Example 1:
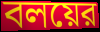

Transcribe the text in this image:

বলয়ের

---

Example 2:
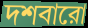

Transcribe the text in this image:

দশবারো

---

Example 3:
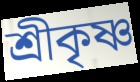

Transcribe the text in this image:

শ্রীকৃষ্ণ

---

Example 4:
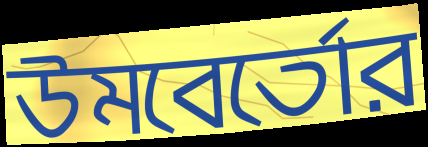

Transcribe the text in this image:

উমবের্তোর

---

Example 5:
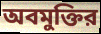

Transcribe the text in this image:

অবমুক্তির